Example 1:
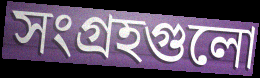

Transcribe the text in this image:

সংগ্রহগুলো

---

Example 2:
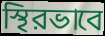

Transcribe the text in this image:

স্থিরভাবে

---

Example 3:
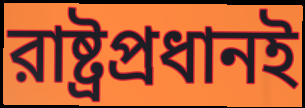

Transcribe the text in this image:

রাষ্ট্রপ্রধানই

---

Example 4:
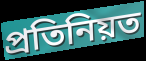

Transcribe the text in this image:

প্রতিনিয়ত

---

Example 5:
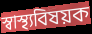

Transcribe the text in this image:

স্বাস্থ্যবিষয়ক